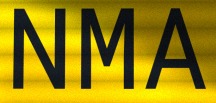
NMA